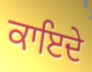
ਕਾਇਦੇ